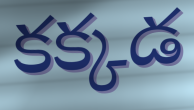
కక్కడ